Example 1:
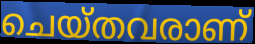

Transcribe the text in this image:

ചെയ്തവരാണ്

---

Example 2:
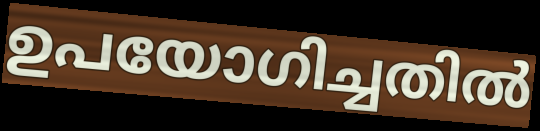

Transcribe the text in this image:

ഉപയോഗിച്ചതിൽ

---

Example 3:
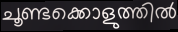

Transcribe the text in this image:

ചൂണ്ടക്കൊളുത്തിൽ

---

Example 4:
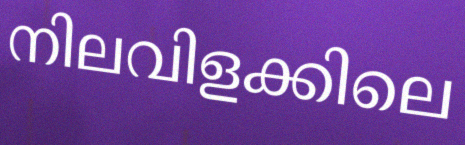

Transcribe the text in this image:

നിലവിളക്കിലെ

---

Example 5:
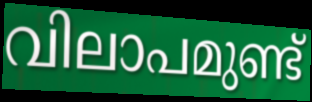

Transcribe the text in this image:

വിലാപമുണ്ട്